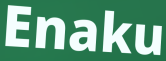
Enaku